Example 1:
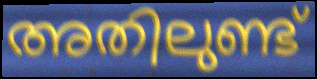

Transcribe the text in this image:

അതിലുണ്ട്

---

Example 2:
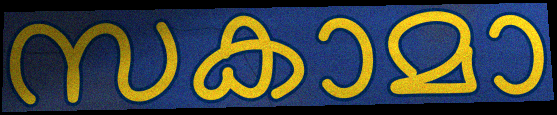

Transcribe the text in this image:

സകാമാ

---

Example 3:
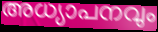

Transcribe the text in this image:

അധ്യാപനവും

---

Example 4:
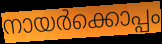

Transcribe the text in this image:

നായർക്കൊപ്പം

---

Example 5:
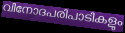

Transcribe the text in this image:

വിനോദപരിപാടികളും